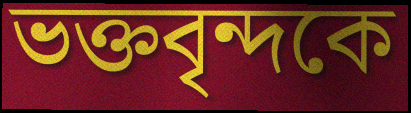
ভক্তবৃন্দকে